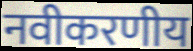
नवीकरणीय